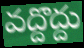
వద్దొద్దు